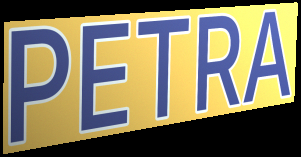
PETRA